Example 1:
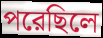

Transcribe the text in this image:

পরেছিলে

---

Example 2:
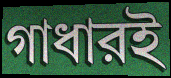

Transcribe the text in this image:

গাধারই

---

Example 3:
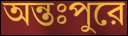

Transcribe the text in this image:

অন্তঃপুরে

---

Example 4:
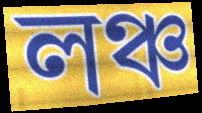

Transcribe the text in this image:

লঞ্চ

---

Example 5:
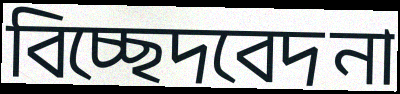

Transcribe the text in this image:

বিচ্ছেদবেদনা